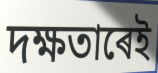
দক্ষতাৰেই